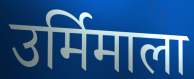
उर्मिमाला